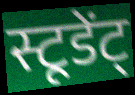
स्टूडेंट्